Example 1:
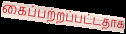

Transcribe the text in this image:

கைப்பற்றப்பட்டதாக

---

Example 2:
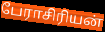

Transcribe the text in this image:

பேராசிரியன்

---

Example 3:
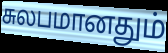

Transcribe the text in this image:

சுலபமானதும்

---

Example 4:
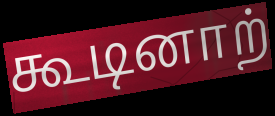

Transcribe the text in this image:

கூடினாற்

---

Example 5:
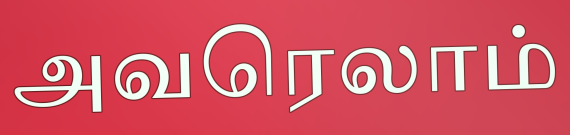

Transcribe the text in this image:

அவரெலாம்